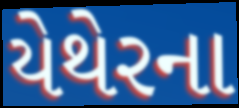
યેથેરના